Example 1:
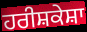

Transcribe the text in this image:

ਹਰੀਸ਼ਕੇਸ਼ਾ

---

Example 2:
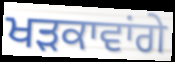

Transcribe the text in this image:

ਖੜਕਾਵਾਂਗੇ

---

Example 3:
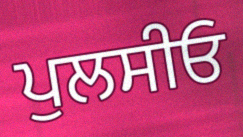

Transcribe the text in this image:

ਪੁਲਸੀਓ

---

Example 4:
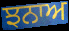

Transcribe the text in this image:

ਝਨਾਅ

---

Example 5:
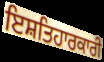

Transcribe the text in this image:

ਇਸ਼ਤਿਹਾਰਕਾਰੀ